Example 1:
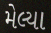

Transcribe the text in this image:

મેલ્યા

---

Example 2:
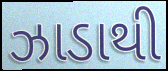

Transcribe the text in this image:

ઝાડાથી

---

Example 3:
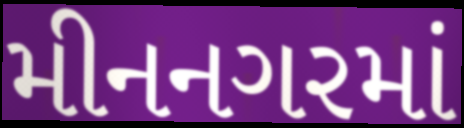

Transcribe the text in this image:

મીનનગરમાં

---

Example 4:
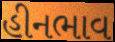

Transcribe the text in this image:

હીનભાવ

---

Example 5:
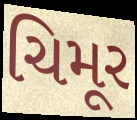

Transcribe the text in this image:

ચિમૂર